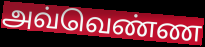
அவ்வெண்ண